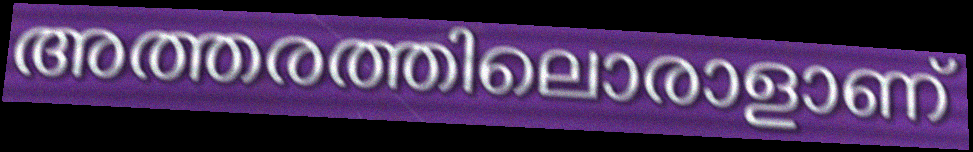
അത്തരത്തിലൊരാളാണ്